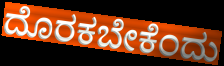
ದೊರಕಬೇಕೆಂದು